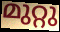
മുറ്റു